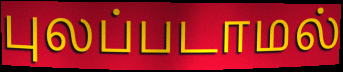
புலப்படாமல்